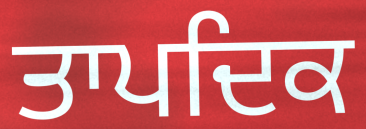
ਤਾਪਦਿਕ